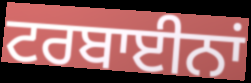
ਟਰਬਾਈਨਾਂ